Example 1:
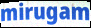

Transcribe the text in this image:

mirugam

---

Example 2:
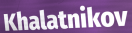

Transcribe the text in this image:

Khalatnikov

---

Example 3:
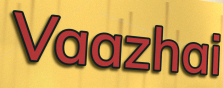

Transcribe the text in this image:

Vaazhai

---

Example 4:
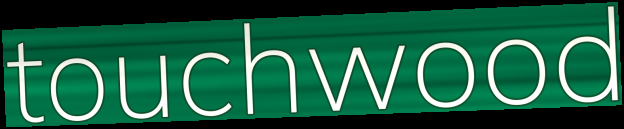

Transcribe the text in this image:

touchwood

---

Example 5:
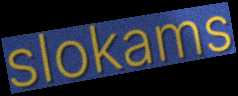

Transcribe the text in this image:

slokams